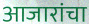
आजारांचा